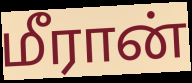
மீரான்